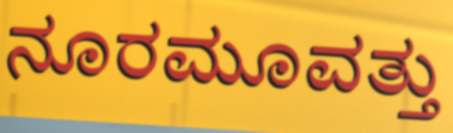
ನೂರಮೂವತ್ತು